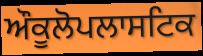
ਔਕੂਲੋਪਲਾਸਟਿਕ